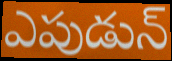
ఎపుడున్